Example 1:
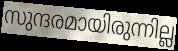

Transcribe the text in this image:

സുന്ദരമായിരുന്നില്ല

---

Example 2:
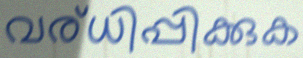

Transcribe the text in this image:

വര്ധിപ്പിക്കുക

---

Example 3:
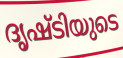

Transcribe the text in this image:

ദൃഷ്ടിയുടെ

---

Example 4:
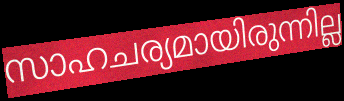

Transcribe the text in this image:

സാഹചര്യമായിരുന്നില്ല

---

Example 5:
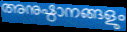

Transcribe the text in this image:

അനുഷ്ഠാനങ്ങളും